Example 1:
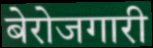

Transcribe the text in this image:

बेरोजगारी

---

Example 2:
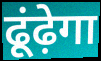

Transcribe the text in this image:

ढूंढ़ेगा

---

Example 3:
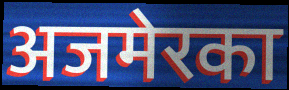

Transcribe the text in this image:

अजमेरका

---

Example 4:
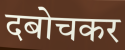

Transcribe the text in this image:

दबोचकर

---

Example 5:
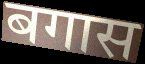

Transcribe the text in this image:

बगास